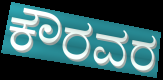
ಕೌರವರ